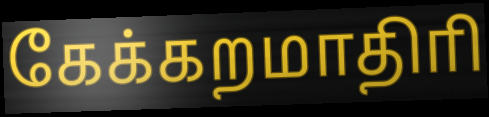
கேக்கறமாதிரி